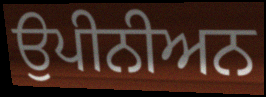
ਉਪੀਨੀਅਨ